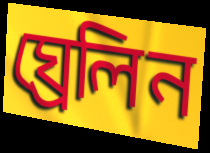
ঘ্ৰেলিন